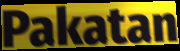
Pakatan